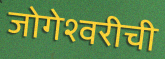
जोगेश्वरीची